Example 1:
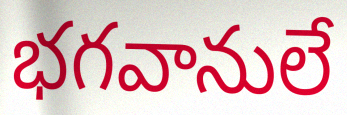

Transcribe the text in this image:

భగవానులే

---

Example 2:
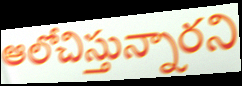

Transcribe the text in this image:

ఆలోచిస్తున్నారని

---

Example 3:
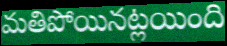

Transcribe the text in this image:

మతిపోయినట్లయింది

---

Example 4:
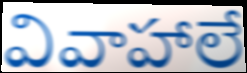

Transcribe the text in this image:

వివాహాలే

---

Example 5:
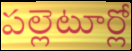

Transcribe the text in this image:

పల్లెటూర్లో